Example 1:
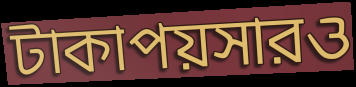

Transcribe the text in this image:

টাকাপয়সারও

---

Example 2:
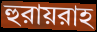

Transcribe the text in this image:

হুরায়রাহ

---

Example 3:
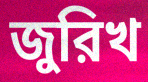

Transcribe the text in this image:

জুরিখ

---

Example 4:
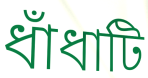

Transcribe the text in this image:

ধাঁধাটি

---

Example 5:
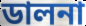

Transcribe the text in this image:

ডালনা